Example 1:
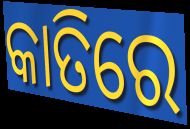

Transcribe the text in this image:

କାତିରେ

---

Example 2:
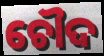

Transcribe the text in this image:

ଚୌଦ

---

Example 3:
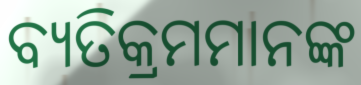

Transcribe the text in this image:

ବ୍ୟତିକ୍ରମମାନଙ୍କ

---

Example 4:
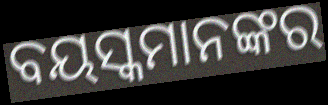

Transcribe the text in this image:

ବୟସ୍କମାନଙ୍କର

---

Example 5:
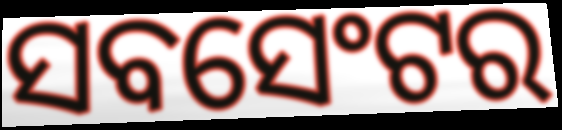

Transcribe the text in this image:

ସବସେଂଟର